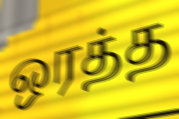
ஒரத்த